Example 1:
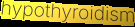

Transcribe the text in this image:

hypothyroidism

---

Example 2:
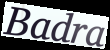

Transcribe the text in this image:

Badra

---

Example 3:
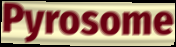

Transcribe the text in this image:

Pyrosome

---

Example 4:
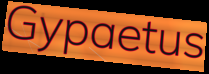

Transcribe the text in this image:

Gypaetus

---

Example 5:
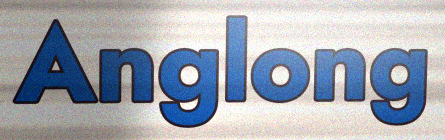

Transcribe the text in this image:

Anglong